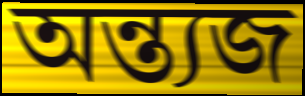
অন্ত্যজ